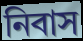
নিবাস